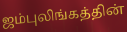
ஜம்புலிங்கத்தின்